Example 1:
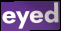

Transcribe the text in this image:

eyed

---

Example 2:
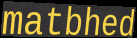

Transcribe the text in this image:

matbhed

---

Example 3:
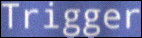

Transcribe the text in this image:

Trigger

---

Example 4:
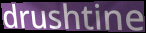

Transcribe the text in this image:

drushtine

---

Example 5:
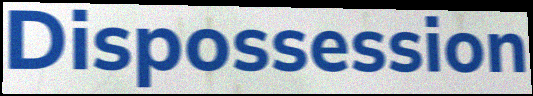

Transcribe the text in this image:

Dispossession